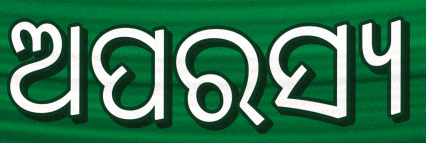
ଅପରସ୍ୟ